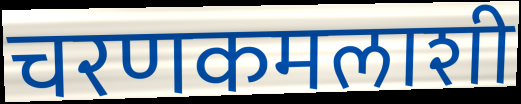
चरणकमलाशी